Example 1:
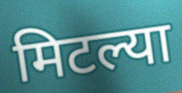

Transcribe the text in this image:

मिटल्या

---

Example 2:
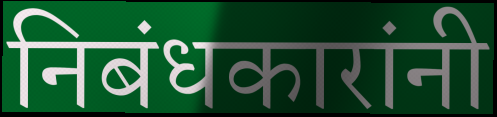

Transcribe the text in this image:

निबंधकारांनी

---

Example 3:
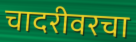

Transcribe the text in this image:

चादरीवरचा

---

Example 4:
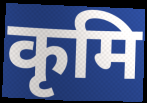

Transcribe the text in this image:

कृमि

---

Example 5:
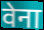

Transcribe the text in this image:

वेना